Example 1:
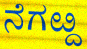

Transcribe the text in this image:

ನೆಗೞ್ದ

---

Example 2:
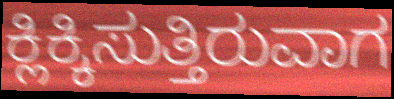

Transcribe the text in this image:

ಕ್ಲಿಕ್ಕಿಸುತ್ತಿರುವಾಗ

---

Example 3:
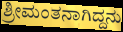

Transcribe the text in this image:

ಶ್ರೀಮಂತನಾಗಿದ್ದನು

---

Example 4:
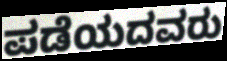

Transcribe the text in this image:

ಪಡೆಯದವರು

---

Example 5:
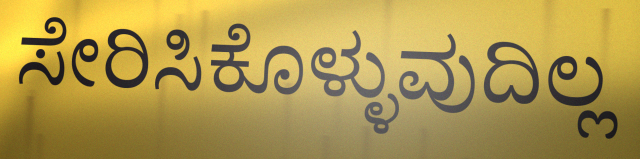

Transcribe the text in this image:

ಸೇರಿಸಿಕೊಳ್ಳುವುದಿಲ್ಲ